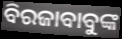
ବିରଜାବାବୁଙ୍କ